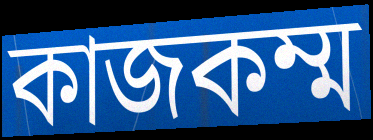
কাজকম্ম